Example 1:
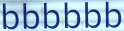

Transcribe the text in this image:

bbbbbb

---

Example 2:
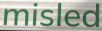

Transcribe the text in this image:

misled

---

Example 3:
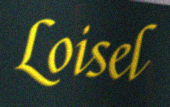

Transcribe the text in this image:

Loisel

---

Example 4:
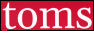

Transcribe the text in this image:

toms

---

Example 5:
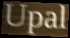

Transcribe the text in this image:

Upal